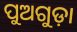
ପୁଅଗୁଡ଼ା